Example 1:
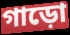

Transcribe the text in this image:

গাড়ো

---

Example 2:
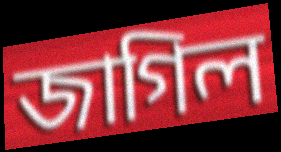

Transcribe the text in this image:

জাগিল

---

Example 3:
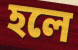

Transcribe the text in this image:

হলে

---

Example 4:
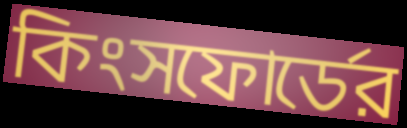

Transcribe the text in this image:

কিংসফোর্ডের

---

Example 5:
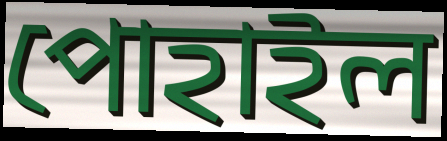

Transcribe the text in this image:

পোহাইল